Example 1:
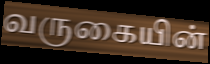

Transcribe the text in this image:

வருகையின்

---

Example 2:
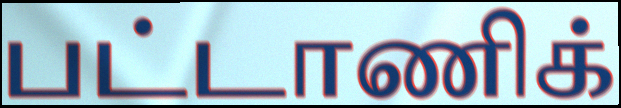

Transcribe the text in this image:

பட்டாணிக்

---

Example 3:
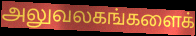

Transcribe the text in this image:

அலுவலகங்களைக்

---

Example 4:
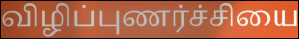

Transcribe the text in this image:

விழிப்புணர்ச்சியை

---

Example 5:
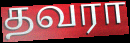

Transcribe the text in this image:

தவரா